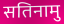
सतिनामु